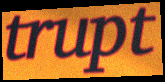
trupt